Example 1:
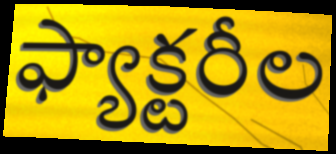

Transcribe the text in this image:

ఫ్యాక్టరీల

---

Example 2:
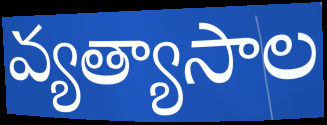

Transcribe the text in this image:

వ్యత్యాసాల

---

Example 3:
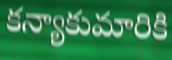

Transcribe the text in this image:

కన్యాకుమారికి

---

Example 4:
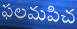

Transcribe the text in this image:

ఫలమపిచ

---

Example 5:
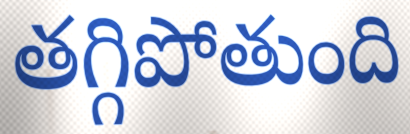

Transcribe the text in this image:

తగ్గిపోతుంది